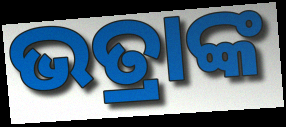
ଭତ୍ରାଙ୍କ